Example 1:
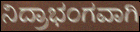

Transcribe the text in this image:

ನಿದ್ರಾಭಂಗವಾಗಿ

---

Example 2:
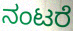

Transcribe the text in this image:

ನಂಟರೆ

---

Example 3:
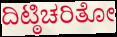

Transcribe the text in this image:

ದಿಟ್ಠಿಚರಿತೋ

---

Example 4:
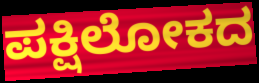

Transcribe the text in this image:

ಪಕ್ಷಿಲೋಕದ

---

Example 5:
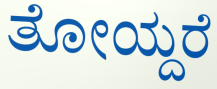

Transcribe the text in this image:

ತೋಯ್ದರೆ